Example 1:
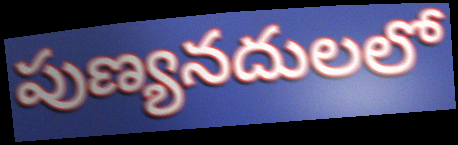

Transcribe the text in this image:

పుణ్యనదులలో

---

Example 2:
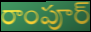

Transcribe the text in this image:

రాంపూర్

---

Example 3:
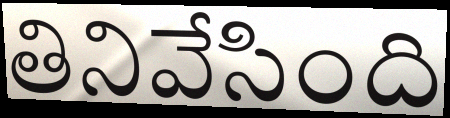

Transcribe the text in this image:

తినివేసింది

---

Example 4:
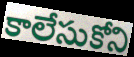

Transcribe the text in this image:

కాలేసుకోని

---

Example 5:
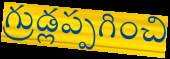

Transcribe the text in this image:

గ్రుడ్లప్పగించి